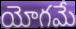
యోగమే